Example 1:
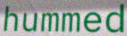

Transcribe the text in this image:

hummed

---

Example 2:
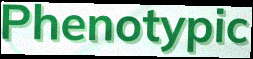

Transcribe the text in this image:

Phenotypic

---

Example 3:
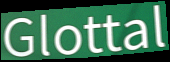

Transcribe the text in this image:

Glottal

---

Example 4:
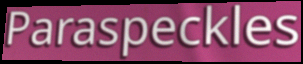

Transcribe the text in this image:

Paraspeckles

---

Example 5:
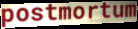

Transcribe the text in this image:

postmortum